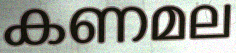
കണമല